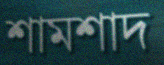
শামশাদ